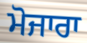
ਮੋਜਾਰਾ